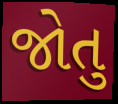
જોતુ